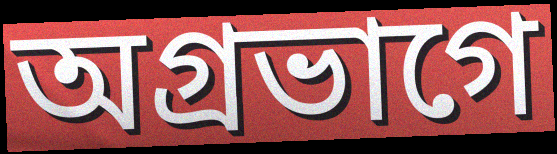
অগ্রভাগে